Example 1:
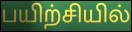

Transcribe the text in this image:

பயிற்சியில்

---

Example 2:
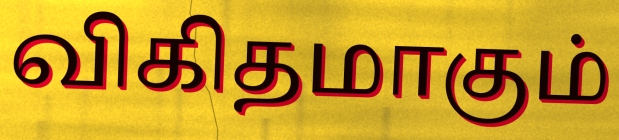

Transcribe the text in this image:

விகிதமாகும்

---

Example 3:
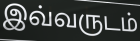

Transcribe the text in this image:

இவ்வருடம்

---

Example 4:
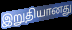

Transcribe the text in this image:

இறுதியானது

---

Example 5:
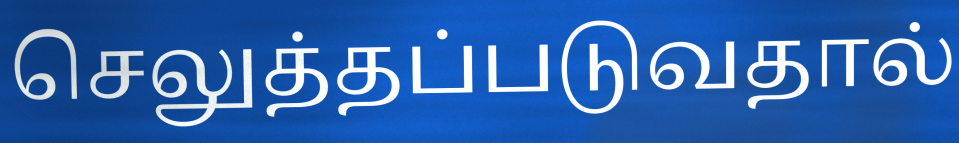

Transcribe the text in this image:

செலுத்தப்படுவதால்